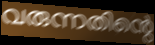
വരുന്നതിന്റെ